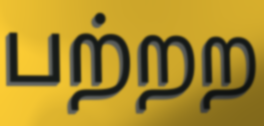
பற்றற